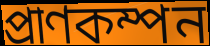
প্রাণকম্পন